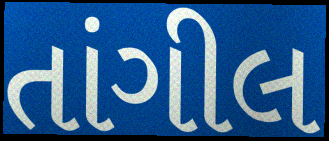
તાંગીલ